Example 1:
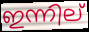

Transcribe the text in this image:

ഇന്നില്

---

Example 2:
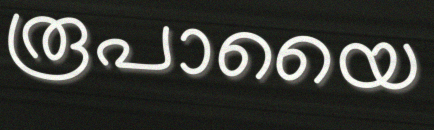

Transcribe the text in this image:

രൂപായൈ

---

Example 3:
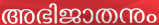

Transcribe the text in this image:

അഭിജാതനും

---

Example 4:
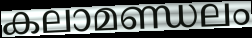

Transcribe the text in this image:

കലാമണ്ഡലം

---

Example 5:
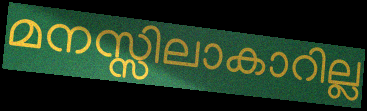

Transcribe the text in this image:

മനസ്സിലാകാറില്ല